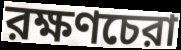
রক্ষণচেরা